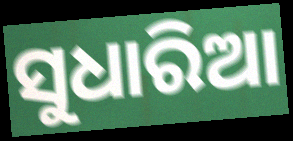
ସୁଧାରିଆ